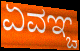
ಏವಞ್ಚ